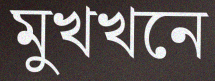
মুখখনে